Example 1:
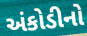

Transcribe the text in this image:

અંકોડીનો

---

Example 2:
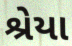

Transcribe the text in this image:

શ્રેયા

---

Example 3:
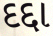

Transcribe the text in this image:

દદ્દા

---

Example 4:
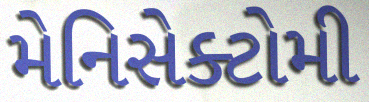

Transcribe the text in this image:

મેનિસેક્ટોમી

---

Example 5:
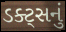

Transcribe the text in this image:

ડક્ટ્સનું